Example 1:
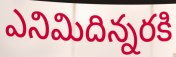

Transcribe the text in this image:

ఎనిమిదిన్నరకి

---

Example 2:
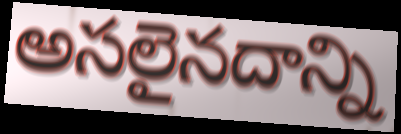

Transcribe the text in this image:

అసలైనదాన్ని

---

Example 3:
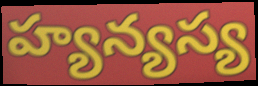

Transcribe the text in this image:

హ్యన్యస్య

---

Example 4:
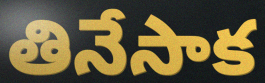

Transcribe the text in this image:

తినేసాక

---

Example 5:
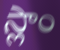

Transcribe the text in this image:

స్లాం